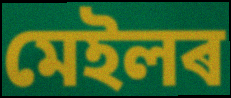
মেইলৰ